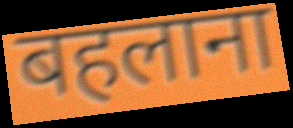
बहलाना